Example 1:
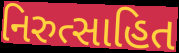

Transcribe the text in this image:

નિરુત્સાહિત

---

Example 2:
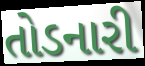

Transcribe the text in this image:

તોડનારી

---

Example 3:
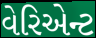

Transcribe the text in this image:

વેરિએન્ટ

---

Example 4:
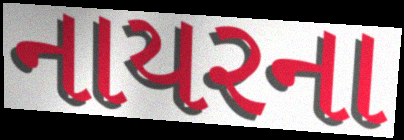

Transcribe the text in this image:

નાયરના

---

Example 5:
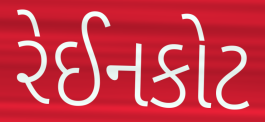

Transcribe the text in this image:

રેઈનકોટ